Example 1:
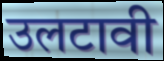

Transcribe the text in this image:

उलटावी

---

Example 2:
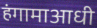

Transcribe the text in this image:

हंगामाआधी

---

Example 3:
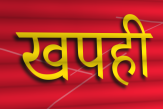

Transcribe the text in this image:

खपही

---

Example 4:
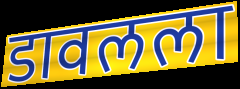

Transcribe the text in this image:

डावलला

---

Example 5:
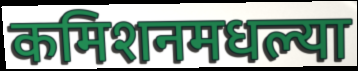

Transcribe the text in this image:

कमिशनमधल्या